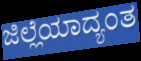
ಜಿಲ್ಲೆಯಾದ್ಯಂತ